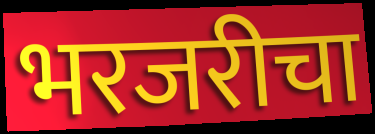
भरजरीचा